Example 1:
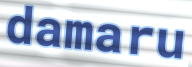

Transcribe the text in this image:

damaru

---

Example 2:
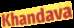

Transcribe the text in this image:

Khandava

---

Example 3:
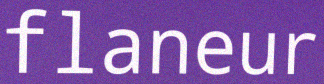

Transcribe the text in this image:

flaneur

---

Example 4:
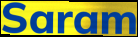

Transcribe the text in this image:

Saram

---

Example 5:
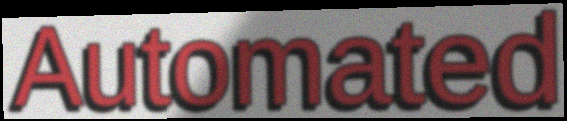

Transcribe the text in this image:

Automated